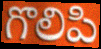
గొలిపి